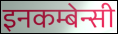
इनकम्बेन्सी